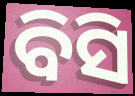
ବିସି